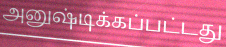
அனுஷ்டிக்கப்பட்டது